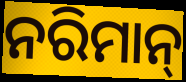
ନରିମାନ୍